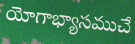
యోగాభ్యాసముచే